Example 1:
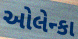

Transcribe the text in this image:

ઓલેન્કા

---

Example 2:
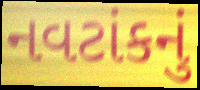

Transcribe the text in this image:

નવટાંકનું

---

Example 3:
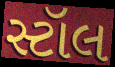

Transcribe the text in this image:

સ્ટૉલ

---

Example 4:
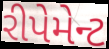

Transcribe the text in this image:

રીપેમેન્ટ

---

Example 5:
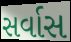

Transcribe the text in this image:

સર્વાસ